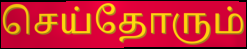
செய்தோரும்